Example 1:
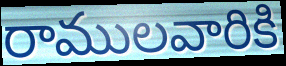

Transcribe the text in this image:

రాములవారికి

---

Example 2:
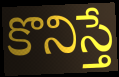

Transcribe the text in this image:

కొనిస్తే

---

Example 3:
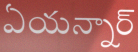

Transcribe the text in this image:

ఏయన్నార్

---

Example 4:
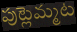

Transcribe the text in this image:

పుట్లెమ్మట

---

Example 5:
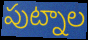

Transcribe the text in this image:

పుట్నాల